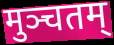
मुञ्चतम्